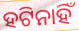
ହଟିନାହିଁ